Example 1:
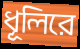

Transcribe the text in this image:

ধূলিরে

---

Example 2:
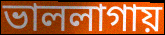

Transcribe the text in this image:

ভাললাগায়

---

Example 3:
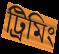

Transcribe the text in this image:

ট্রিমিং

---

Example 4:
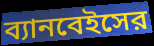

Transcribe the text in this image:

ব্যানবেইসের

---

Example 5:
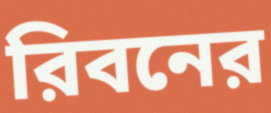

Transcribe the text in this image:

রিবনের